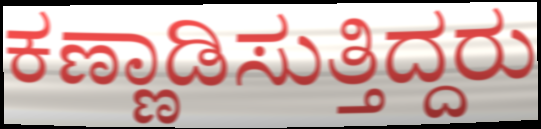
ಕಣ್ಣಾಡಿಸುತ್ತಿದ್ದರು